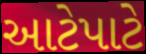
આટેપાટે